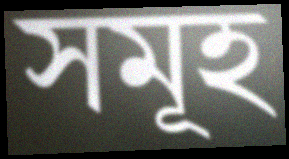
সমূহ